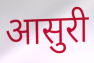
आसुरी